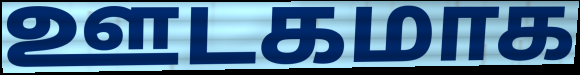
ஊடகமாக